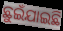
ଛୁଇଁଯାଇଛି